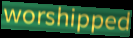
worshipped